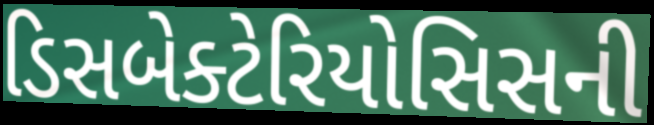
ડિસબેક્ટેરિયોસિસની